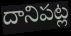
దానిపట్ల